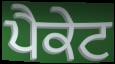
ਪੈਕੇਟ